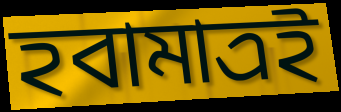
হবামাত্রই